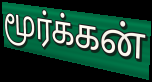
மூர்க்கன்